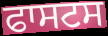
ਫਾਸਟਸ